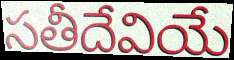
సతీదేవియే